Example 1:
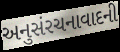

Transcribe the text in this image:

અનુસંરચનાવાદની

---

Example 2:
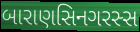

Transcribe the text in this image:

બારાણસિનગરસ્સ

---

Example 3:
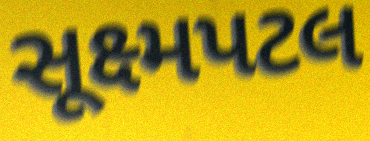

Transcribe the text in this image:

સૂક્ષ્મપટલ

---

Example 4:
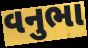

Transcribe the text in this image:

વનુભા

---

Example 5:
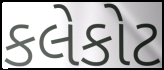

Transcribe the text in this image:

કલેકોટ